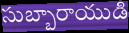
సుబ్బారాయుడి